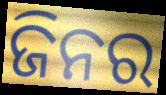
ଜିନର